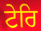
ਟੇਰਿ